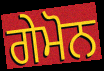
ਗੇਮੋਨ